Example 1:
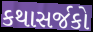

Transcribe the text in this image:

કથાસર્જકો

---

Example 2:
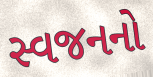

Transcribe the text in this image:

સ્વજનનો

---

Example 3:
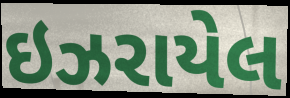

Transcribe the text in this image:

ઇઝરાયેલ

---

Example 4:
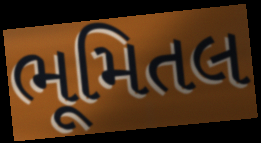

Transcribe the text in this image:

ભૂમિતલ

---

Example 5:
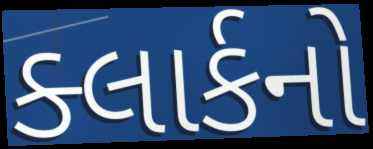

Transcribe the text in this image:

ક્લાર્કનો